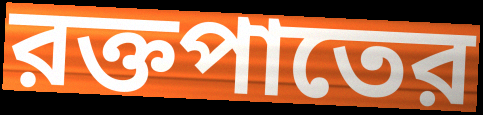
রক্তপাতের